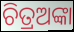
ଚିତ୍ରଅଙ୍କା